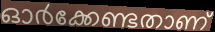
ഓർക്കേണ്ടതാണ്